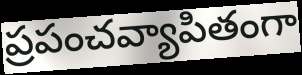
ప్రపంచవ్యాపితంగా